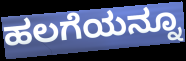
ಹಲಗೆಯನ್ನೂ